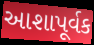
આશાપૂર્વક